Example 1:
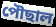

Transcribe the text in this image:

পৌছাল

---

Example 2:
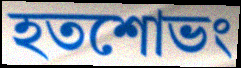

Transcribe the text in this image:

হতশোভং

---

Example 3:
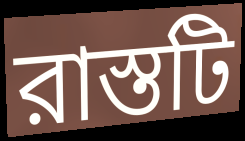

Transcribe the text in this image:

রাস্তটি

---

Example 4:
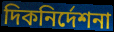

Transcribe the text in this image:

দিকনির্দেশনা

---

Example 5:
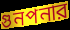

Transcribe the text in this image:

গুনপনার